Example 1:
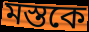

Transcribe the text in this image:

মস্তকে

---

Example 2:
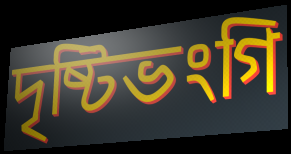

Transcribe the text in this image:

দৃষ্টিভংগি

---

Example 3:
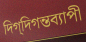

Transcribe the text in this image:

দিগ্‌দিগন্তব্যাপী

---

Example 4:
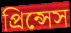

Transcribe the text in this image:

প্রিন্সেস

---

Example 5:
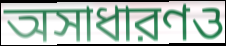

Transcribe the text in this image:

অসাধারণও